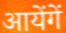
आयेंगें